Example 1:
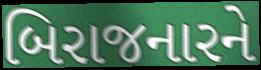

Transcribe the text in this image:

બિરાજનારને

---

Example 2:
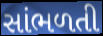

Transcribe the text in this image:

સાંભળતી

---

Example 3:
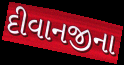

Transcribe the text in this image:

દીવાનજીના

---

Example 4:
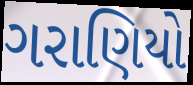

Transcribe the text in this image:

ગરાણિયો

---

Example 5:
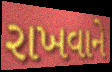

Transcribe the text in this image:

રાખવાને